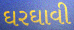
ઘરઘાવી